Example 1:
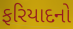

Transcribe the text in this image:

ફરિયાદનો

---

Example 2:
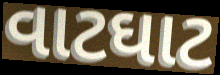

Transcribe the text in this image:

વાટઘાટ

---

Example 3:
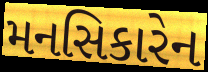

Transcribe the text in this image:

મનસિકારેન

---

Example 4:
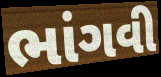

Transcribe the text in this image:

ભાંગવી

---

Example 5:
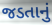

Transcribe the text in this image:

જડતાનું